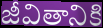
జీవితానికి